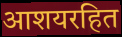
आशयरहित